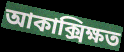
আকাক্সিক্ষত